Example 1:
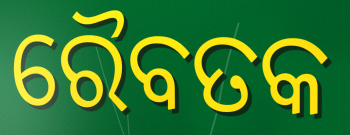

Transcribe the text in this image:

ରୈବତକ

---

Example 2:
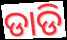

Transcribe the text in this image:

ଡାଡି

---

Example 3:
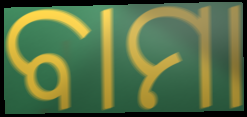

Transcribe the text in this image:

ବାମା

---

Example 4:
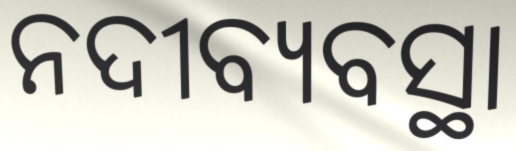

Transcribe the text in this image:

ନଦୀବ୍ୟବସ୍ଥା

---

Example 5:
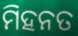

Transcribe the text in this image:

ମିହନତ